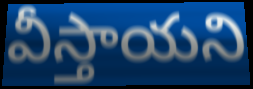
వీస్తాయని